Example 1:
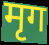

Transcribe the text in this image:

मृग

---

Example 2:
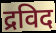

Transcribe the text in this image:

द्रविद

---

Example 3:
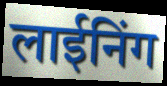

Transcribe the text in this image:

लाईनिंग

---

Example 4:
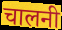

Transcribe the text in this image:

चालनी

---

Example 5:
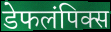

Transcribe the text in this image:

डेफलंपिक्स